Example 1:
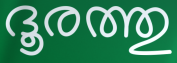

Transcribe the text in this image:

ദൂരത്തു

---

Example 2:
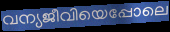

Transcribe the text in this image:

വന്യജീവിയെപ്പോലെ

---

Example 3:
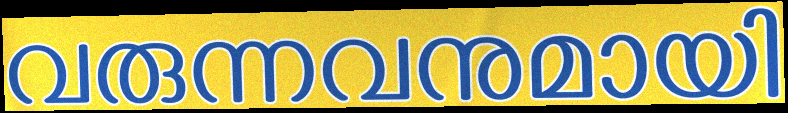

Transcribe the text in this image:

വരുന്നവനുമായി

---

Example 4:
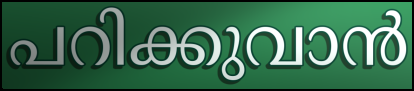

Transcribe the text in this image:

പറിക്കുവാൻ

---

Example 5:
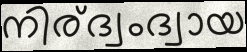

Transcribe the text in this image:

നിര്ദ്വംദ്വായ